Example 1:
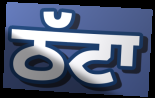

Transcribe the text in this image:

ਠੱਟਾ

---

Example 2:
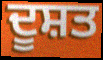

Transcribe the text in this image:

ਦੂਸ਼ਤ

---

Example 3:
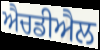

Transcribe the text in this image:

ਐਚਡੀਐਲ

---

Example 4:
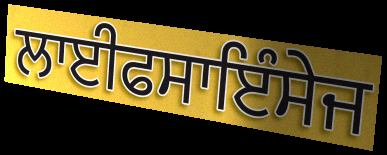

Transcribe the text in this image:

ਲਾਈਫਸਾਇੰਸੇਜ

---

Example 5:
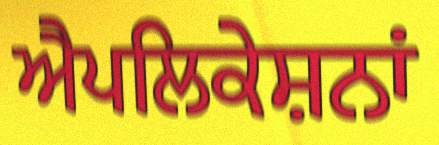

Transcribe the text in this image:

ਐਪਲਿਕੇਸ਼ਨਾਂ